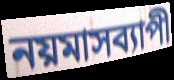
নয়মাসব্যাপী